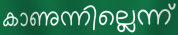
കാണുന്നില്ലെന്ന്